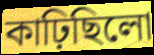
কাঢ়িছিলো